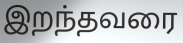
இறந்தவரை